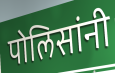
पोलिसांनी